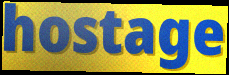
hostage